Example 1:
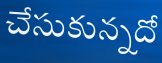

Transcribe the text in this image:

చేసుకున్నదో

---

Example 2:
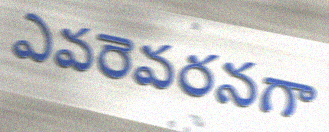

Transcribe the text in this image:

ఎవరెవరనగా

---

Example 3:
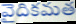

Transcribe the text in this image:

వైదికమత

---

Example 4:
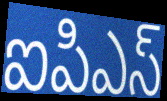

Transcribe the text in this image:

ఐపిఎస్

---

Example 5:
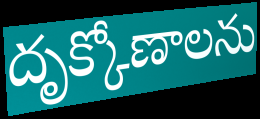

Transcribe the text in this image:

దృక్కోణాలను